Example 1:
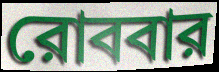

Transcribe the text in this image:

রোববার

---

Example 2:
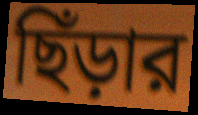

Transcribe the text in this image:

ছিঁড়ার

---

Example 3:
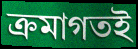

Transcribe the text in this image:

ক্রমাগতই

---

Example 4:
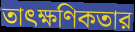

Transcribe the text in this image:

তাৎক্ষণিকতার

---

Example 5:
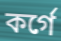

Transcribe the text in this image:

কর্গে